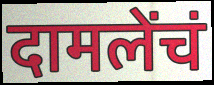
दामलेंचं